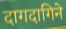
दागदागिने